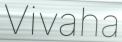
Vivaha